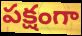
పక్షంగా